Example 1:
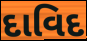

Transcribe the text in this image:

દાવિદ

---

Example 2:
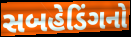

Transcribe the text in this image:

સબહેડિંગનો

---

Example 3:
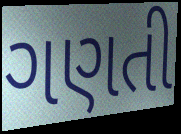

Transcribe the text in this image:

ગણતી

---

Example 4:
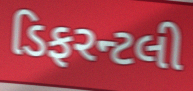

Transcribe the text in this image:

ડિફરન્ટલી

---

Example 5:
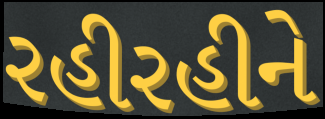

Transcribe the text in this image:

રહીરહીને